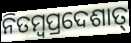
ନିତମ୍ବପ୍ରଦେଶାତ୍